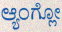
ಆ್ಯಂಗ್ಲೋ